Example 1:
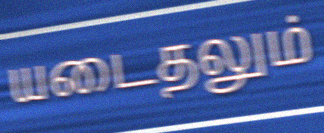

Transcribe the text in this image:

யடைதலும்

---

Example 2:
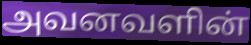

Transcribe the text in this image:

அவனவளின்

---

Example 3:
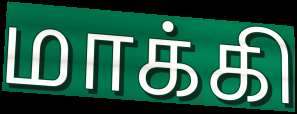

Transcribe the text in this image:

மாக்கி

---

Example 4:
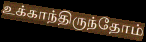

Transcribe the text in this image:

உக்காந்திருந்தோம்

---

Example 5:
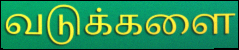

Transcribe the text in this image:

வடுக்களை